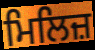
ਮਿਲਿਜ਼